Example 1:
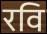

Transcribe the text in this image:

रवि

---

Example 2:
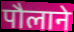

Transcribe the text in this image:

पौलाने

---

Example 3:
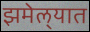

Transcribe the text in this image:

झमेल्यात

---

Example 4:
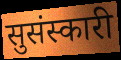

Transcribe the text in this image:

सुसंस्कारी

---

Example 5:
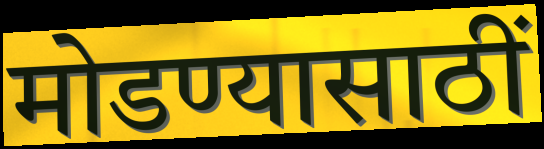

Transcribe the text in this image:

मोडण्यासाठीं